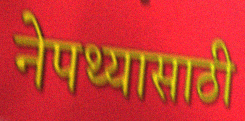
नेपथ्यासाठी